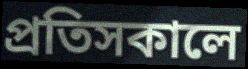
প্রতিসকালে